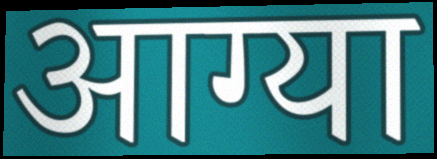
आग्या